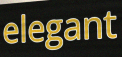
elegant